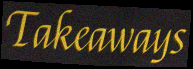
Takeaways